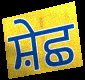
ਸ਼ੇਛ